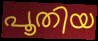
പൂതിയ